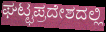
ಘಟ್ಟಪ್ರದೇಶದಲ್ಲಿ